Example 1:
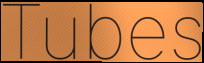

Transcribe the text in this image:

Tubes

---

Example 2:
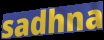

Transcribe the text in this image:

sadhna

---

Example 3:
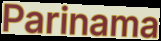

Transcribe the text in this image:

Parinama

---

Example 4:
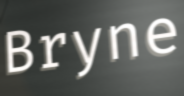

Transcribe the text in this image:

Bryne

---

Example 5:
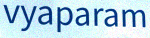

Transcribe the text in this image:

vyaparam